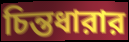
চিন্তধারার